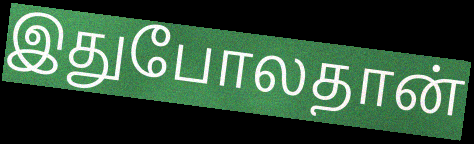
இதுபோலதான்